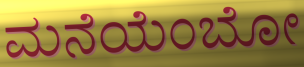
ಮನೆಯೆಂಬೋ